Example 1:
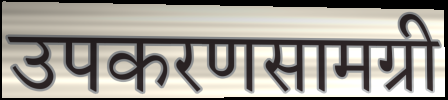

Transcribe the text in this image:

उपकरणसामग्री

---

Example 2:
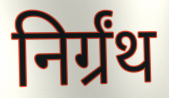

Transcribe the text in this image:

निर्ग्रंथ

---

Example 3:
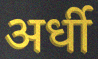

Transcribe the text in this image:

अर्धी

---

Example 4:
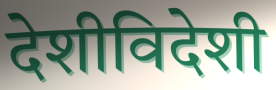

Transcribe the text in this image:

देशीविदेशी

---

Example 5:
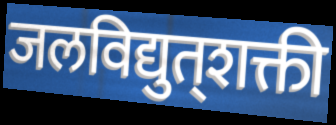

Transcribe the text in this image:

जलविद्युत्‌शक्ती